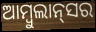
ଆମ୍ବୁଲାନ୍‌ସର